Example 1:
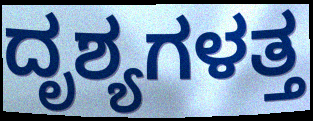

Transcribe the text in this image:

ದೃಶ್ಯಗಳತ್ತ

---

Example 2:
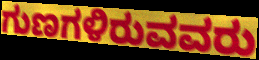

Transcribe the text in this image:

ಗುಣಗಳಿರುವವರು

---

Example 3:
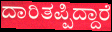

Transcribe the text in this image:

ದಾರಿತಪ್ಪಿದ್ದಾರೆ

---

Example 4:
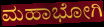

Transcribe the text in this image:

ಮಹಾಭೋಗಿ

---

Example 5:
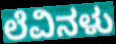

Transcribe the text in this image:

ಲೆವಿನಳು